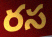
రస